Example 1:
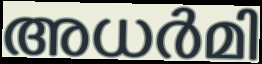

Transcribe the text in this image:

അധർമി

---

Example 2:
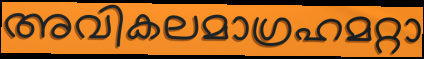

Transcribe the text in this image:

അവികലമാഗ്രഹമറ്റാ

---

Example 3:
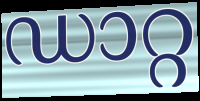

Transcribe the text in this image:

ഡാറ്റ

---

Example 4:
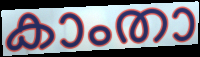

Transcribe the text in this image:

കാംതാ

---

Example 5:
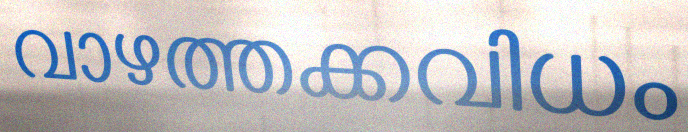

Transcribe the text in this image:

വാഴത്തക്കവിധം